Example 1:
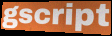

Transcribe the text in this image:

gscript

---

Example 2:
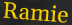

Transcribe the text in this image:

Ramie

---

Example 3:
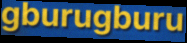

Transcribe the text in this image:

gburugburu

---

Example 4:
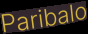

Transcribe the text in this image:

Paribalo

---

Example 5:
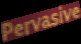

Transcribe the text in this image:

Pervasive